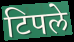
टिपले